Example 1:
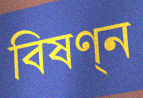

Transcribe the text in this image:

বিষণ্ন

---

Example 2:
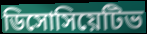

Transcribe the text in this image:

ডিসোসিয়েটিভ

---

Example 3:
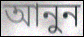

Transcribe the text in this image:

আনুন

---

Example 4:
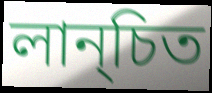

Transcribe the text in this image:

লান্চিত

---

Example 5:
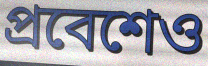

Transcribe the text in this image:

প্রবেশেও